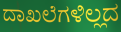
ದಾಖಲೆಗಳಿಲ್ಲದ